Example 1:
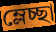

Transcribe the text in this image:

ম্লেচ্ছা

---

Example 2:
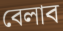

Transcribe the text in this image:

বেলাব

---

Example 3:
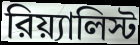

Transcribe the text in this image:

রিয়্যালিস্ট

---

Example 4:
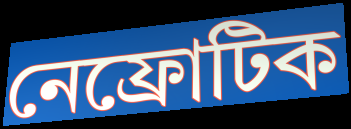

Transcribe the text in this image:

নেফ্রোটিক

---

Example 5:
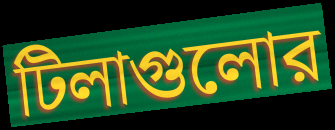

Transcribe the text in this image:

টিলাগুলোর